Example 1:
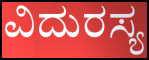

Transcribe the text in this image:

ವಿದುರಸ್ಯ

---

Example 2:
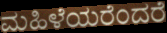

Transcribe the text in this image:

ಮಹಿಳೆಯರೆಂದರೆ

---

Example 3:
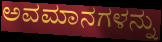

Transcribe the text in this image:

ಅವಮಾನಗಳನ್ನು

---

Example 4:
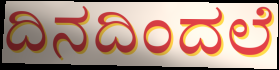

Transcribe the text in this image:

ದಿನದಿಂದಲೆ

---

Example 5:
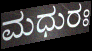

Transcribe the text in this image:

ಮಧುರಃ